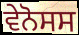
ਵੇਨੋਸਸ